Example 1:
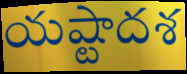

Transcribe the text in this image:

యష్టాదశ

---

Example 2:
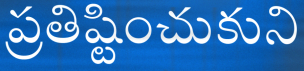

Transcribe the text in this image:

ప్రతిష్టించుకుని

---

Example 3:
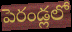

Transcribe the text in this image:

పెరండ్లలో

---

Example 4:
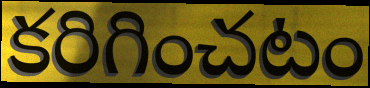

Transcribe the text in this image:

కరిగించటం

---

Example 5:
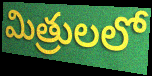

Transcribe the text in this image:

మిత్రులలో